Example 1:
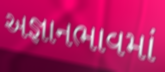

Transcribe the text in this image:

અજ્ઞાનભાવમાં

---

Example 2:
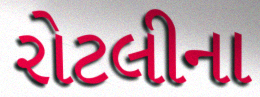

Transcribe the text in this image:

રોટલીના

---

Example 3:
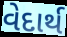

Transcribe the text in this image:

વેદાર્થ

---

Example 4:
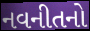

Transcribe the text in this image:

નવનીતનો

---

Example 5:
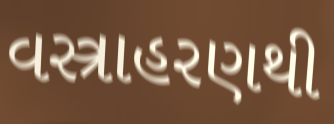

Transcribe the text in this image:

વસ્ત્રાહરણથી